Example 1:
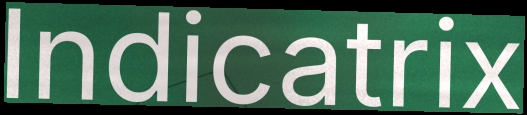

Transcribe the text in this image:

Indicatrix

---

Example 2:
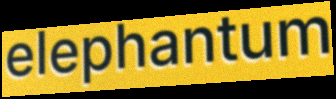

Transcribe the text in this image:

elephantum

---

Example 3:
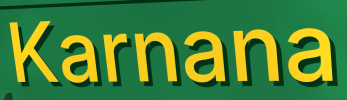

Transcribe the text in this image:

Karnana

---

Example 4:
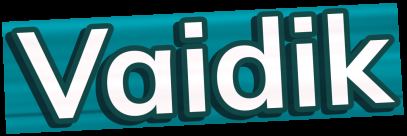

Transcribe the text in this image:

Vaidik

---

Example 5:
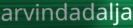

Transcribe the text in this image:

arvindadalja